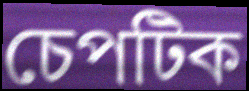
চেপটিক